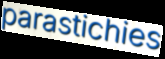
parastichies